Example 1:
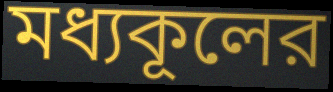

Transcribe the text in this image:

মধ্যকূলের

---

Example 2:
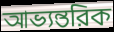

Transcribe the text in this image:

আভ্যন্তরিক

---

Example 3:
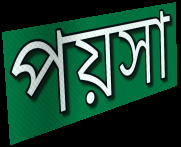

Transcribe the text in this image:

পয়সা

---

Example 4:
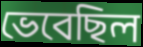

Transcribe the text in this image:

ভেবেছিল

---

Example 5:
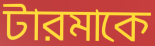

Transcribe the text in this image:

টারমাকে